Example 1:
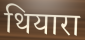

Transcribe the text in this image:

थियारा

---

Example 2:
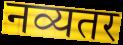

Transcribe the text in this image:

नव्यतर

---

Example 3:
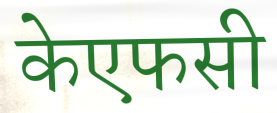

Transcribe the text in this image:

केएफसी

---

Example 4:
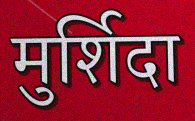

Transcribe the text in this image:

मुर्शिदा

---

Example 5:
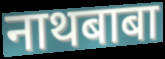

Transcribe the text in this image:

नाथबाबा